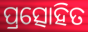
ପ୍ରତ୍ସୋହିତ